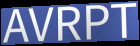
AVRPT